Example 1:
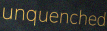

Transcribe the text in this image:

unquenched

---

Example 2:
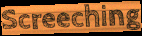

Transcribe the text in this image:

Screeching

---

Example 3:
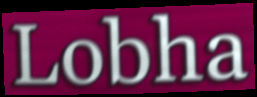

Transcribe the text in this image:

Lobha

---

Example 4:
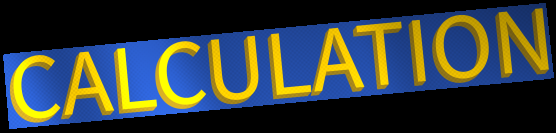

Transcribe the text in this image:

CALCULATION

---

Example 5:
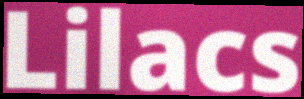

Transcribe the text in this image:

Lilacs